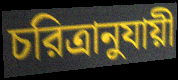
চরিত্রানুযায়ী